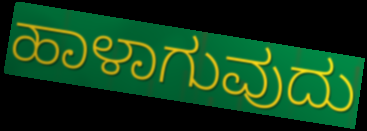
ಹಾಳಾಗುವುದು